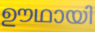
ഊഥായി